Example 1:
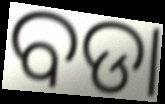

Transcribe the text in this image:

ବଡା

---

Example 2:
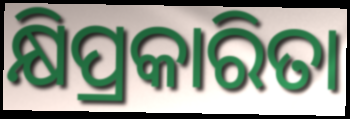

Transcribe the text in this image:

କ୍ଷିପ୍ରକାରିତା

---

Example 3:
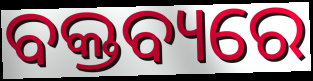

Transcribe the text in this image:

ବକ୍ତବ୍ୟରେ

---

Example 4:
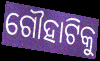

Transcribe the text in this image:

ଗୌହାଟିକୁ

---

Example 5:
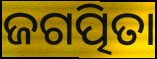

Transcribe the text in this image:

ଜଗତ୍ପିତା